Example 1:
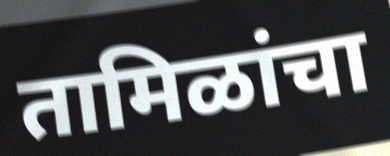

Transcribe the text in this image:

तामिळांचा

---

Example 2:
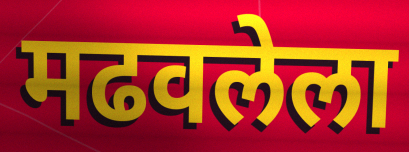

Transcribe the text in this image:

मढवलेला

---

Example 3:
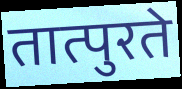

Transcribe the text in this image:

तात्पुरते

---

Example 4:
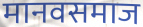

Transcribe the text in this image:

मानवसमाज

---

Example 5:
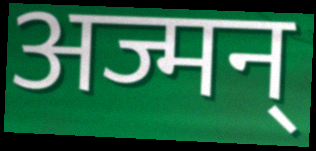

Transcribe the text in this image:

अज्मन्